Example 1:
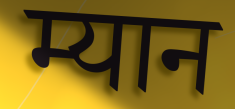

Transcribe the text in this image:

म्यान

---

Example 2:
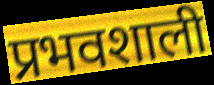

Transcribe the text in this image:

प्रभवशाली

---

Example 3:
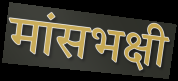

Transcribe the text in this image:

मांसभक्षी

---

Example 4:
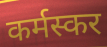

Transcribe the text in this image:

कर्मस्कर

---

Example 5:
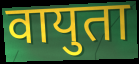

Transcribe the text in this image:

वायुता